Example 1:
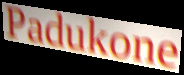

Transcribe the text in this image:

Padukone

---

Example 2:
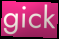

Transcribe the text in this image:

gick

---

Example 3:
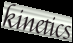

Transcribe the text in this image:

kinetics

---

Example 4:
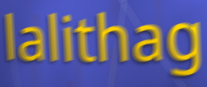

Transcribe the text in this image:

lalithag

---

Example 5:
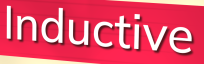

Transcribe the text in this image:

Inductive